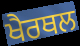
ਖੈਰਥਲ